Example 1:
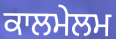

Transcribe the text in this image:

ਕਾਲਮੇਲਮ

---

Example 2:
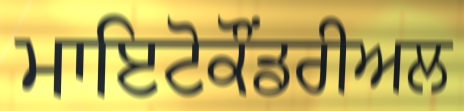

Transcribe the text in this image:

ਮਾਇਟੋਕੌਂਡਰੀਅਲ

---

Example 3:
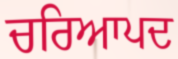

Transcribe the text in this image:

ਚਰਿਆਪਦ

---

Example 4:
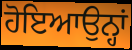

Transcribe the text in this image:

ਹੋਇਆਉਨ੍ਹਾਂ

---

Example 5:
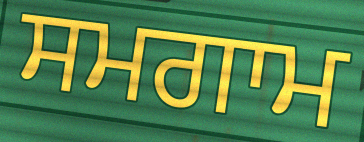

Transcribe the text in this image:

ਸਮਗਾਮ